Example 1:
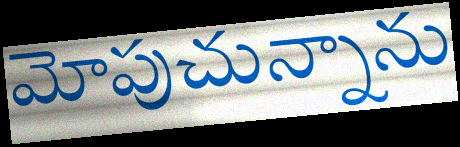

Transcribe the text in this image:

మోపుచున్నాను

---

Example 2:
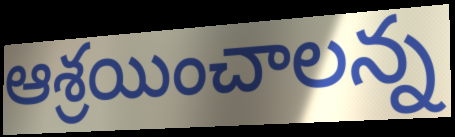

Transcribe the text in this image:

ఆశ్రయించాలన్న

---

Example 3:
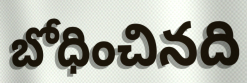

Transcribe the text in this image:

బోధించినది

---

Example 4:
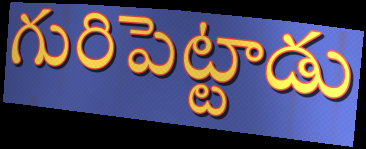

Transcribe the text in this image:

గురిపెట్టాడు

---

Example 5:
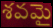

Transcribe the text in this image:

శవమై